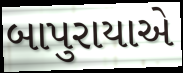
બાપુરાયાએ